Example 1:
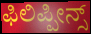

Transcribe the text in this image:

ಫಿಲಿಪ್ಪೀನ್ಸ್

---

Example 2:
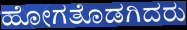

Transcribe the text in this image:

ಹೋಗತೊಡಗಿದರು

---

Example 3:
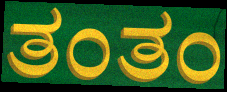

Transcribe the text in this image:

ತಂತಂ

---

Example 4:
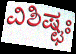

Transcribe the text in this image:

ವಿಶಿಷ್ಟಃ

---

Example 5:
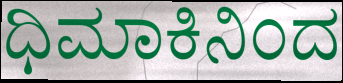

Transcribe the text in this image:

ಧಿಮಾಕಿನಿಂದ